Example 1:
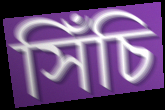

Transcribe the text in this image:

সিঁচি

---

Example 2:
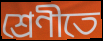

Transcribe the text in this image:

শ্ৰেণীতে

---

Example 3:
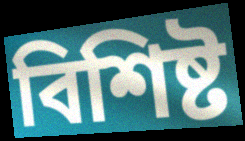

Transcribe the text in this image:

বিশিষ্ট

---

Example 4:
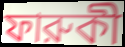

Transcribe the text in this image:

ফাৰুকী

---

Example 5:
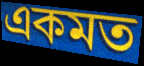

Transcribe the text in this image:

একমত